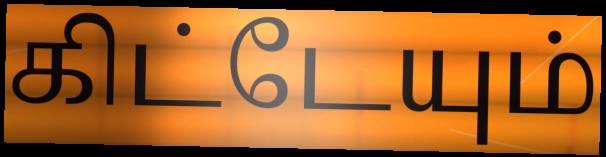
கிட்டேயும்